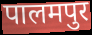
पालमपुर